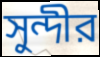
সুন্দীর